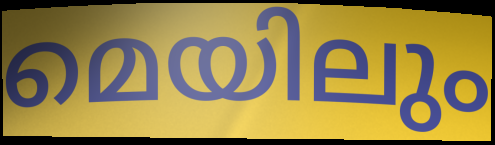
മെയിലും